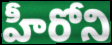
హీరోని